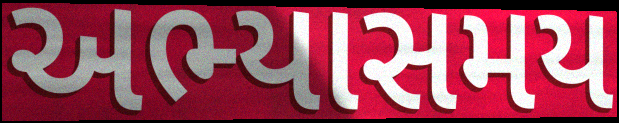
અભ્યાસમય